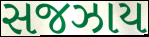
સજઝાય